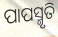
ପାପସ୍ମୃତି